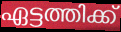
ഏട്ടത്തിക്ക്